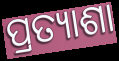
ପ୍ରତ୍ୟାଶା